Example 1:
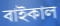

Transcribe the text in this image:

বাইকাল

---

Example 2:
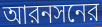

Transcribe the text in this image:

আরনসনের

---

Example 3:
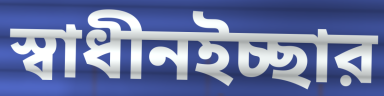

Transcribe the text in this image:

স্বাধীনইচ্ছার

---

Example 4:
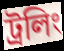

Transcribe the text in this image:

ট্রলিং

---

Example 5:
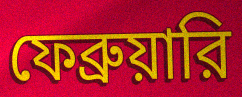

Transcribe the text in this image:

ফেব্রুয়ারি